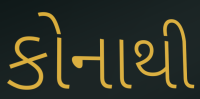
કોનાથી